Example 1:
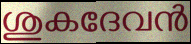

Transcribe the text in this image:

ശുകദേവൻ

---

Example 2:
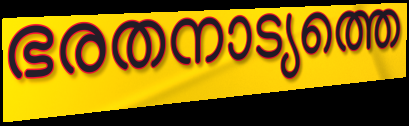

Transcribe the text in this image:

ഭരതനാട്യത്തെ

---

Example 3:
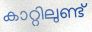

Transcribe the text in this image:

കാറ്റിലുണ്ട്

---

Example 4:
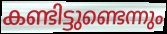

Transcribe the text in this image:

കണ്ടിട്ടുണ്ടെന്നും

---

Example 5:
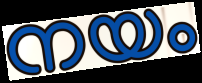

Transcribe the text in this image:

നയം